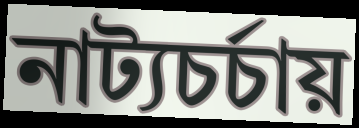
নাট্যচর্চায়